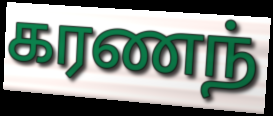
கரணந்